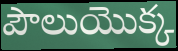
పౌలుయొక్క